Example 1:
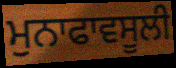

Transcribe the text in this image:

ਮੁਨਾਫਾਵਸੂਲੀ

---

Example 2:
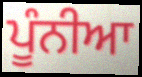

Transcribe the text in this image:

ਪੂੰਨੀਆ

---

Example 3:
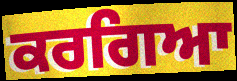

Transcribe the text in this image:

ਕਰਗਿਆ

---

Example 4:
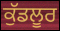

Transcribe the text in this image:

ਕੁੱਡਲੂਰ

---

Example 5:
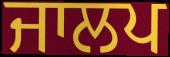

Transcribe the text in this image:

ਜਾਲਪ